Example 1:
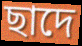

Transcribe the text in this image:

ছাদে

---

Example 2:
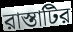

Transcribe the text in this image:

রাস্তাটির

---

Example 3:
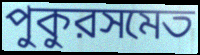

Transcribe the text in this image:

পুকুরসমেত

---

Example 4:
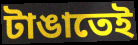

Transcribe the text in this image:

টাঙাতেই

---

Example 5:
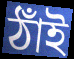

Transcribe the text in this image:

ঠাঁই